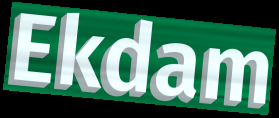
Ekdam